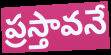
ప్రస్తావనే